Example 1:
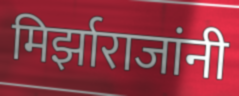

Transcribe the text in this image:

मिर्झाराजांनी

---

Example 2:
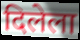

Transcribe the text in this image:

दिलेला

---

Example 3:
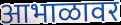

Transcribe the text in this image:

आभाळावर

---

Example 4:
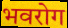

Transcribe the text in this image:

भवरोग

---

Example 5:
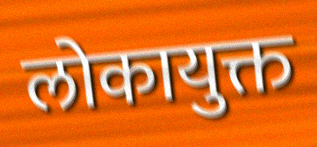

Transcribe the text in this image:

लोकायुक्त